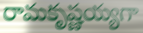
రామకృష్ణయ్యగా